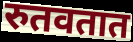
रुतवतात